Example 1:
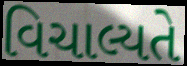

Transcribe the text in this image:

વિચાલ્યતે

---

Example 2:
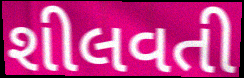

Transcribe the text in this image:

શીલવતી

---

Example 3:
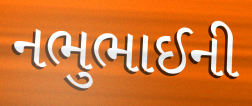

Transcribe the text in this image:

નભુભાઈની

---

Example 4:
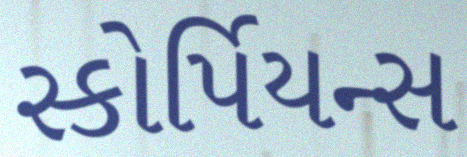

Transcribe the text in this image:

સ્કોર્પિયન્સ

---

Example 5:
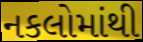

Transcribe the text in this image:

નકલોમાંથી